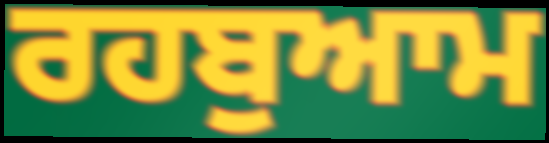
ਰਹਬੁਆਮ